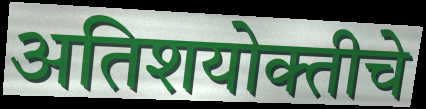
अतिशयोक्तीचे